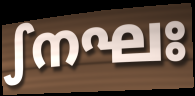
ഽനഘഃ